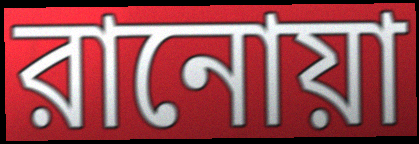
রানোয়া